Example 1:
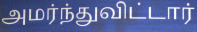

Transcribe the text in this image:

அமர்ந்துவிட்டார்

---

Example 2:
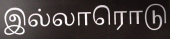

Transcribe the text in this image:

இல்லாரொடு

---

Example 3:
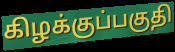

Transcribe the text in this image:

கிழக்குப்பகுதி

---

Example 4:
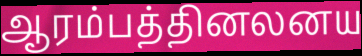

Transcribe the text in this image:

ஆரம்பத்தினலனய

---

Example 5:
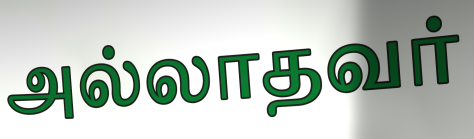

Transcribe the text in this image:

அல்லாதவர்